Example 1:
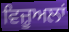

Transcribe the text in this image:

ਵਿਜ਼ੂਅਲਾਂ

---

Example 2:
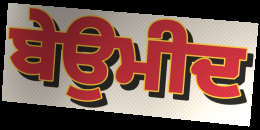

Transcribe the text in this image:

ਬੇਉਮੀਦ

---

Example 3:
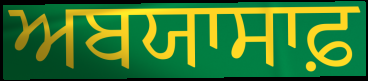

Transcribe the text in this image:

ਅਬਯਾਸਾਫ਼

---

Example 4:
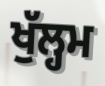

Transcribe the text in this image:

ਖੁੱਲ੍ਹਮ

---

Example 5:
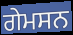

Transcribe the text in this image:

ਗੇਮਸਨ